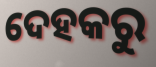
ଦେହକରୁ